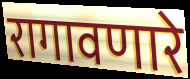
रागावणारे